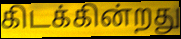
கிடக்கின்றது